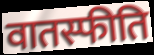
वातस्फीति